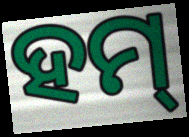
ହମ୍